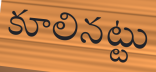
కూలినట్టు